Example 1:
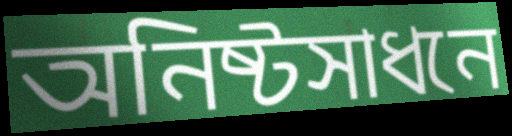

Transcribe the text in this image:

অনিষ্টসাধনে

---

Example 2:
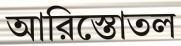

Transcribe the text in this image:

আরিস্তোতল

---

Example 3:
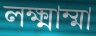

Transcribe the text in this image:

লক্ষ্মাম্মা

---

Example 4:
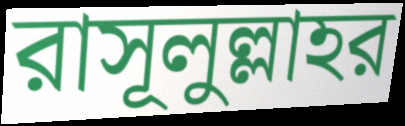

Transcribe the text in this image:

রাসূলুল্লাহর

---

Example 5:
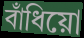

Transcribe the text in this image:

বাঁধিয়ো